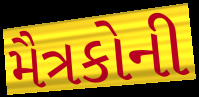
મૈત્રકોની